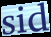
sid